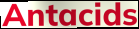
Antacids